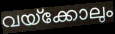
വയ്‌ക്കോലും